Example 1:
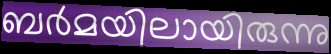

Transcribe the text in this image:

ബർമയിലായിരുന്നു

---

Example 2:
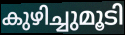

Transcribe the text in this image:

കുഴിച്ചുമൂടി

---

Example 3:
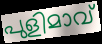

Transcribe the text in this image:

പുളിമാവ്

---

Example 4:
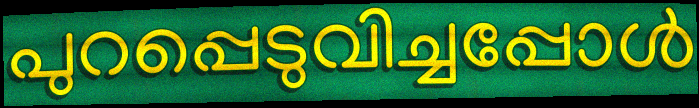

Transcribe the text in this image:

പുറപ്പെടുവിച്ചപ്പോൾ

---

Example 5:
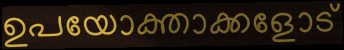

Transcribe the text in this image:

ഉപയോക്താക്കളോട്